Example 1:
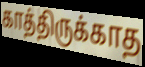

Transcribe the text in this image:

காத்திருக்காத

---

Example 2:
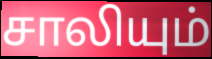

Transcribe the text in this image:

சாலியும்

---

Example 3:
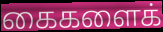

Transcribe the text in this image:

கைகளைக்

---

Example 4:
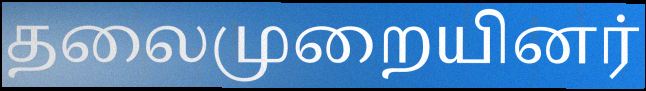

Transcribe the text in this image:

தலைமுறையினர்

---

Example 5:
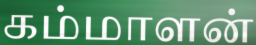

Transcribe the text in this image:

கம்மாளன்